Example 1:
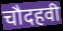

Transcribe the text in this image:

चौदहवी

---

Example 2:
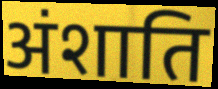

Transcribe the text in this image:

अंशाति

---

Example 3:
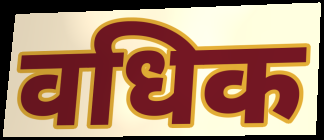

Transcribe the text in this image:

वधिक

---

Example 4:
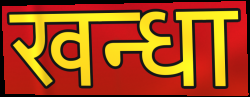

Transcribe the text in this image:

खन्धा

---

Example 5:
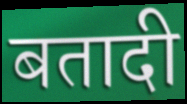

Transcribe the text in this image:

बतादी